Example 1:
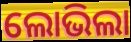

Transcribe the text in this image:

ଲୋଭିଲା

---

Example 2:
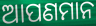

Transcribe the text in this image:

ଆପଣମାନ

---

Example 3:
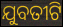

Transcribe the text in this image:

ଯୁବତୀଟି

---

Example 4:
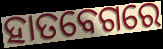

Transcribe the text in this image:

ହାତବେଗରେ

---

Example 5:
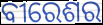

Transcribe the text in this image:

ବୀରେଶର